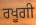
ਰਖੂਗੀ